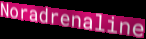
Noradrenaline